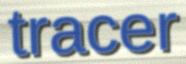
tracer